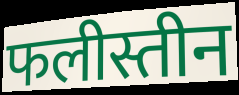
फलीस्तीन